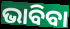
ଭାବିବା